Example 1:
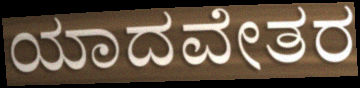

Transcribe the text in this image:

ಯಾದವೇತರ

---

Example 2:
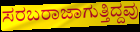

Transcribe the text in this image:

ಸರಬರಾಜಾಗುತ್ತಿದ್ದವು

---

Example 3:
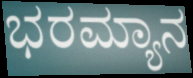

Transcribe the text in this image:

ಭರಮ್ಯಾನ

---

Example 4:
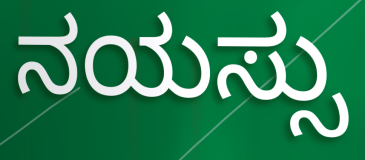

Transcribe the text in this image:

ನಯಸ್ಸು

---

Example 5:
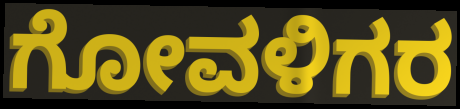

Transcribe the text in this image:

ಗೋವಳಿಗರ